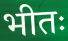
भीतः